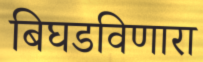
बिघडविणारा